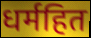
धर्महित